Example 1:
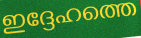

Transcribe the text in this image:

ഇദ്ദേഹത്തെ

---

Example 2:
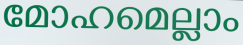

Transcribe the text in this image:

മോഹമെല്ലാം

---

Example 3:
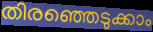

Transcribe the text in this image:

തിരഞ്ഞെടുക്കാം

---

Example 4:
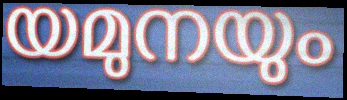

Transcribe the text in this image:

യമുനയും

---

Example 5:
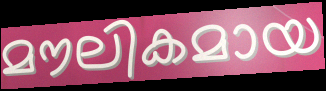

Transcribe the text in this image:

മൗലികമായ